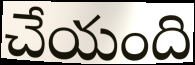
చేయంది